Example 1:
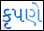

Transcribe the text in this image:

કૃપણે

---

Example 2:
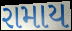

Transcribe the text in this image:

રામાય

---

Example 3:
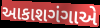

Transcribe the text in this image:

આકાશગંગાએ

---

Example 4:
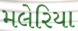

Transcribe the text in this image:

મલેરિયા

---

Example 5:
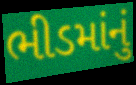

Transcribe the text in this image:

ભીડમાંનું